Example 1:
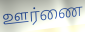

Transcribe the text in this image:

ஊர்ணை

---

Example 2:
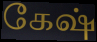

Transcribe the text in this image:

கேஷ்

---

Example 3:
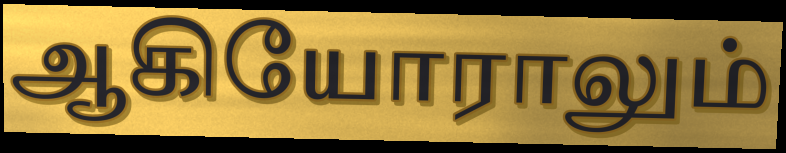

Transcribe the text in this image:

ஆகியோராலும்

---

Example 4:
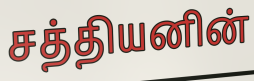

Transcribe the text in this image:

சத்தியனின்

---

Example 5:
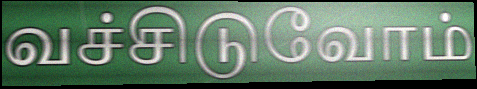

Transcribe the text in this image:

வச்சிடுவோம்